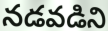
నడవడిని